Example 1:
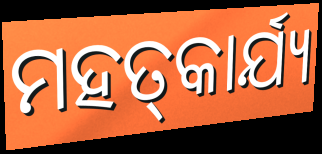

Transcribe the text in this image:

ମହତ୍‌କାର୍ଯ୍ୟ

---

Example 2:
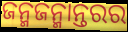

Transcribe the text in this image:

ଜନ୍ମଜନ୍ମାନ୍ତରର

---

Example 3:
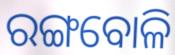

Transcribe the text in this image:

ରଙ୍ଗବୋଳି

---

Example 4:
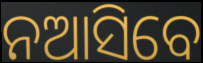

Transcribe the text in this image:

ନଆସିବେ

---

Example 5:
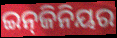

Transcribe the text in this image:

ଇନ୍‌ଜିନିୟର